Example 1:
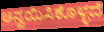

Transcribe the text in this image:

ಅನ್ವಯಿಸಿಕೊಳ್ಳದೆ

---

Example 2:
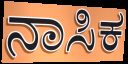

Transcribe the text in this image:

ನಾಸಿಕ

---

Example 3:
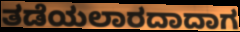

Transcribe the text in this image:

ತಡೆಯಲಾರದಾದಾಗ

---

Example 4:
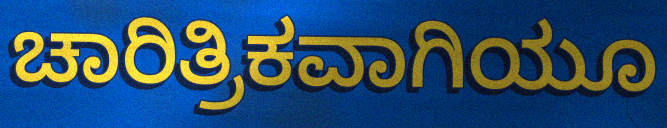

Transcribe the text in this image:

ಚಾರಿತ್ರಿಕವಾಗಿಯೂ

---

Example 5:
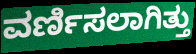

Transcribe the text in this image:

ವರ್ಣಿಸಲಾಗಿತ್ತು